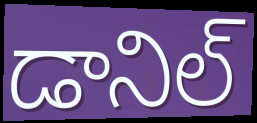
డానిల్